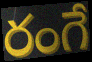
రంగే